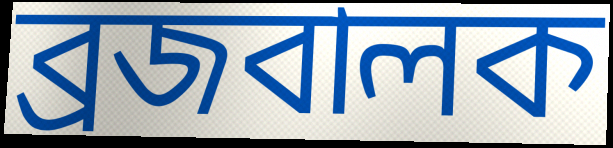
ব্রজবালক